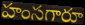
హంసగారూ